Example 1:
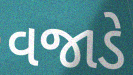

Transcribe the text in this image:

વજાડે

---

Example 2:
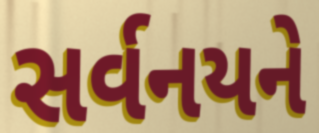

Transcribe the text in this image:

સર્વનયને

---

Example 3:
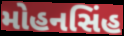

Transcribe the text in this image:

મોહનસિંહ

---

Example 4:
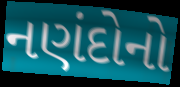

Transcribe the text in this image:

નણંદોનો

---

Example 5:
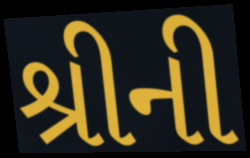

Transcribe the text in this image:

શ્રીની